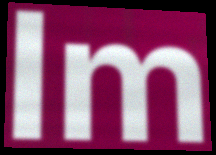
Im